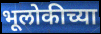
भूलोकीच्या